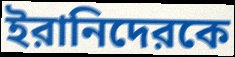
ইরানিদেরকে